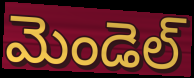
మెండెల్